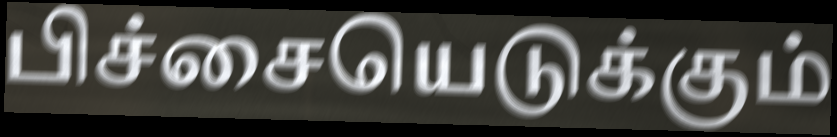
பிச்சையெடுக்கும்